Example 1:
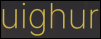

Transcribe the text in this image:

uighur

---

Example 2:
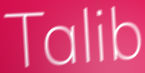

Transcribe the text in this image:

Talib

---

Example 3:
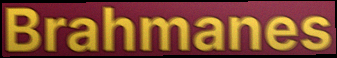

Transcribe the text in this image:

Brahmanes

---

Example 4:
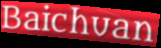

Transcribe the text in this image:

Baichuan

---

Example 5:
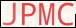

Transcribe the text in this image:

JPMC